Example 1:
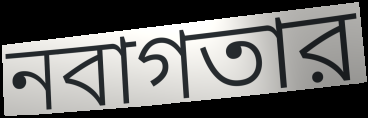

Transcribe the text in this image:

নবাগতার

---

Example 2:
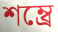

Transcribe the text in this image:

শম্ব্রে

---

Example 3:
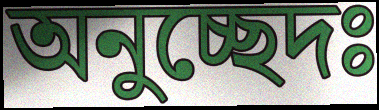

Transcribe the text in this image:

অনুচ্ছেদঃ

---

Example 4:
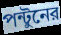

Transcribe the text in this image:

পন্টুনের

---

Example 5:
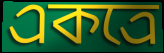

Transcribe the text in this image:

একত্রে